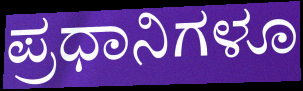
ಪ್ರಧಾನಿಗಳೂ